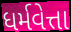
ધર્મવેત્તા